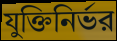
যুক্তিনির্ভর